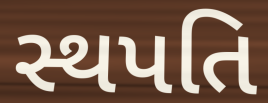
સ્થપતિ